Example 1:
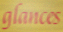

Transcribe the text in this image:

glances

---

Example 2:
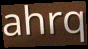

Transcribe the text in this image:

ahrq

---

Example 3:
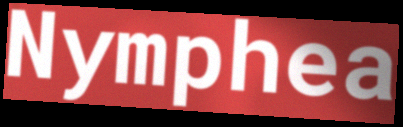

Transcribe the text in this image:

Nymphea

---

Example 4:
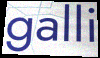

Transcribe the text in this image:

galli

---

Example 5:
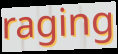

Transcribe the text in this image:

raging